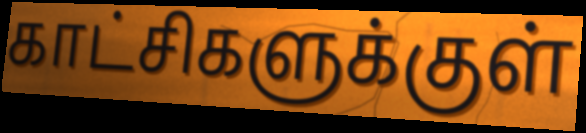
காட்சிகளுக்குள்